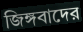
জিঙ্গবাদের